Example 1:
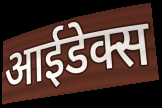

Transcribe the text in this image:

आईडेक्स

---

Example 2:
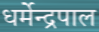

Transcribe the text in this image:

धर्मेन्द्रपाल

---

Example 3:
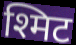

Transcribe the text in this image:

श्मिट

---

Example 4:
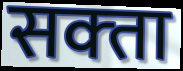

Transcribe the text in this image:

सक्‍ता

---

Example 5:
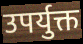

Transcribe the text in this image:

उपर्युक्त